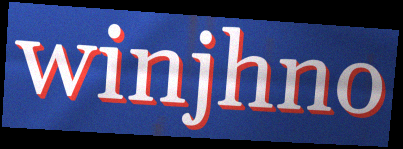
winjhno